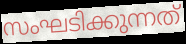
സംഘടിക്കുന്നത്